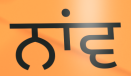
ਨਾਂਵ